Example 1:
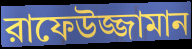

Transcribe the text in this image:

রাফেউজ্জামান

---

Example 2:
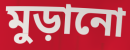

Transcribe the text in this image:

মুড়ানো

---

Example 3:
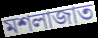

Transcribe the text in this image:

মশলাজাত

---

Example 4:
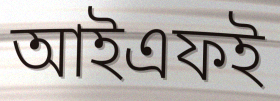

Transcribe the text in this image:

আইএফই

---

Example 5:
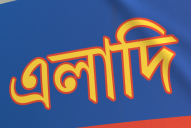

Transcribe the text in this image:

এলাদি